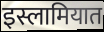
इस्लामियात